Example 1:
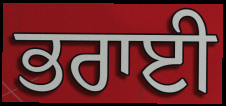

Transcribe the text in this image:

ਭਰਾਈ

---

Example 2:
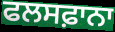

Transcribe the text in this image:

ਫਲਸਫ਼ਾਨਾ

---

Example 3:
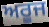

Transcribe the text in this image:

ਅਰੂਜ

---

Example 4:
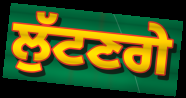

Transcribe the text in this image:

ਲੁੱਟਣਗੇ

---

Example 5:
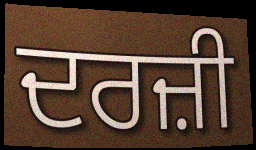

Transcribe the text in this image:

ਦਰਜ਼ੀ